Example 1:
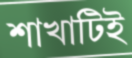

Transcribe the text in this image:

শাখাটিই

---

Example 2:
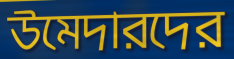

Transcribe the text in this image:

উমেদারদের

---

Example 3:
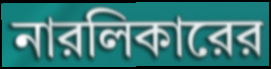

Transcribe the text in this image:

নারলিকারের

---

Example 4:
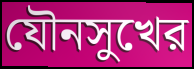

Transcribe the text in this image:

যৌনসুখের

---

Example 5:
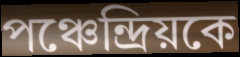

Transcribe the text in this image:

পঞ্চেন্দ্রিয়কে